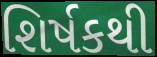
શિર્ષકથી